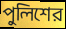
পুলিশের